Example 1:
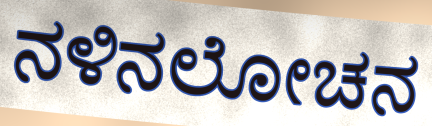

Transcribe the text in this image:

ನಳಿನಲೋಚನ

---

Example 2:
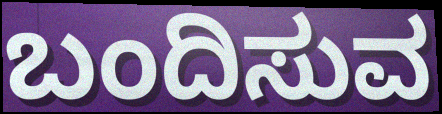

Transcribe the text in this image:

ಬಂದಿಸುವ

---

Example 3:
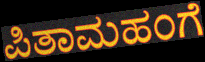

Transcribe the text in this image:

ಪಿತಾಮಹಂಗೆ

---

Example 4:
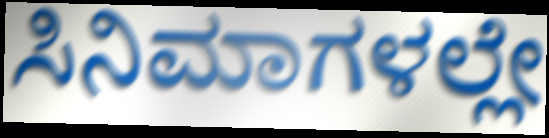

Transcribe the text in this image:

ಸಿನಿಮಾಗಳಲ್ಲೇ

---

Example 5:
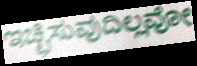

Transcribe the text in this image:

ಇಚ್ಛಿಸುವುದಿಲ್ಲವೋ